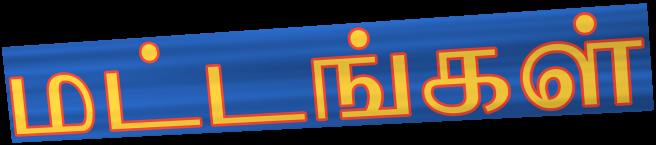
மட்டங்கள்